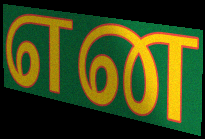
என